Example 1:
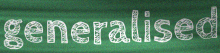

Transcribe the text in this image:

generalised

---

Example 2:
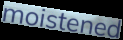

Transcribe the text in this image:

moistened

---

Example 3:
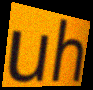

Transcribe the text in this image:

uh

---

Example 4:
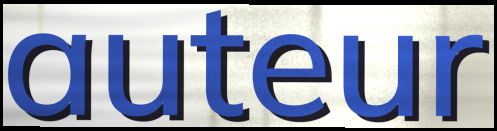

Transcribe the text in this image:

auteur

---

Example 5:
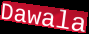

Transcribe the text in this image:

Dawala